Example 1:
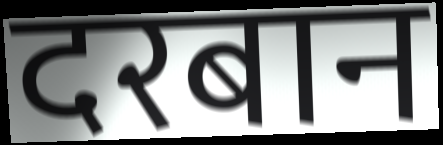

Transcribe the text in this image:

दरबान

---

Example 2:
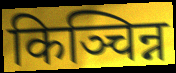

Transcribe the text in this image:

किञ्चिन्न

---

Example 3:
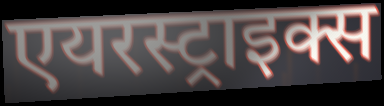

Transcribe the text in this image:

एयरस्ट्राइक्स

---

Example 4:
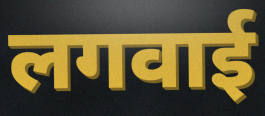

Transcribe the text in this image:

लगवाई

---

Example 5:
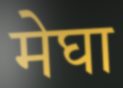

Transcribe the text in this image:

मेघा